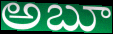
అబూ